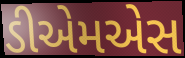
ડીએમએસ